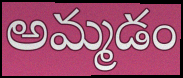
అమ్మడం